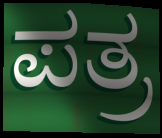
ಪತ್ರ